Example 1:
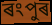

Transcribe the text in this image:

ৰংপুৰ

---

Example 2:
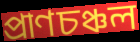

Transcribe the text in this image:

প্ৰাণচঞ্চল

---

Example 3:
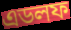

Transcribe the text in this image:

এডলফ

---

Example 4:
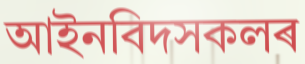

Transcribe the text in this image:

আইনবিদসকলৰ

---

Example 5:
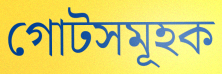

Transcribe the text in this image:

গোটসমূহক